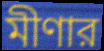
মীণার